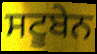
ਸਟੂਬੇਨ